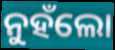
ନୁହଁଲୋ